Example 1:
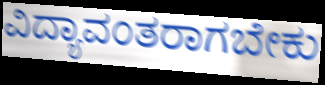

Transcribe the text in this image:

ವಿದ್ಯಾವಂತರಾಗಬೇಕು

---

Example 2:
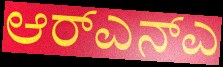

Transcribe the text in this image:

ಆರ್‌ಎನ್ಎ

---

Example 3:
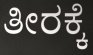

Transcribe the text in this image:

ತೀರಕ್ಕೆ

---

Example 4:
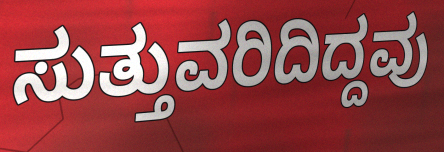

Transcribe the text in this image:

ಸುತ್ತುವರಿದಿದ್ದವು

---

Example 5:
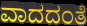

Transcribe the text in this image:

ವಾದದಂತೆ